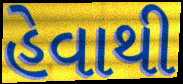
હેવાથી